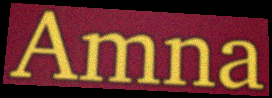
Amna